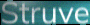
Struve